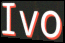
Ivo